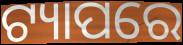
ଟ୍ୟାପରେ